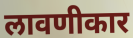
लावणीकार